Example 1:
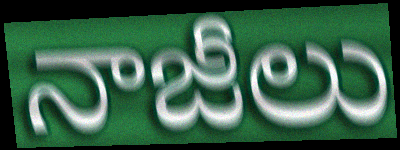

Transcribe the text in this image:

నాజీలు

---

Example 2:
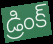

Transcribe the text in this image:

డ్రింక్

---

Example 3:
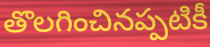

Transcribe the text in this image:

తొలగించినప్పటికీ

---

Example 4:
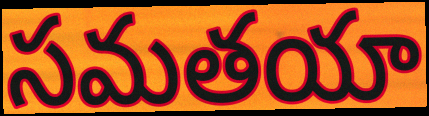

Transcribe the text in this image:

సమతయా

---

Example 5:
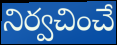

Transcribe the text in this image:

నిర్వచించే